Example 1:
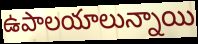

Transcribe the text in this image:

ఉపాలయాలున్నాయి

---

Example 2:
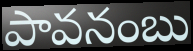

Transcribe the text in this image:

పావనంబు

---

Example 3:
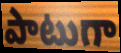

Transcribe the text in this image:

పాటుగా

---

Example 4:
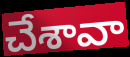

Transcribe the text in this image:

చేశావా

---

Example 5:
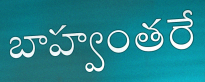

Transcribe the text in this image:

బాహ్వంతరే